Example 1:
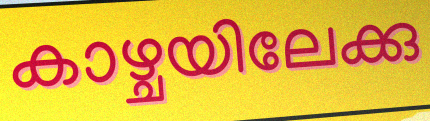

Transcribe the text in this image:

കാഴ്ചയിലേക്കു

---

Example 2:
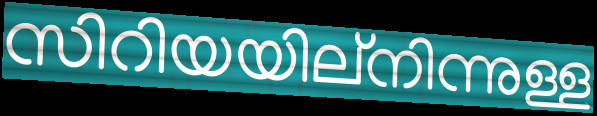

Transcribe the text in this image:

സിറിയയില്നിന്നുള്ള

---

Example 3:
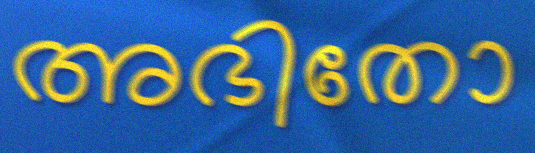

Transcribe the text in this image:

അഭിതോ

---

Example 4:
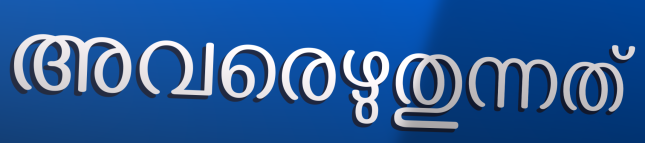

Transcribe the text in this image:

അവരെഴുതുന്നത്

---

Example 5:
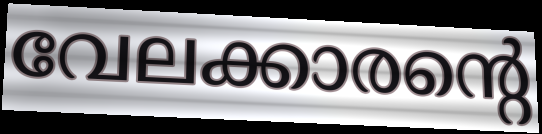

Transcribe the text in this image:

വേലക്കാരന്റെ